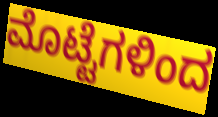
ಮೊಟ್ಟೆಗಳಿಂದ